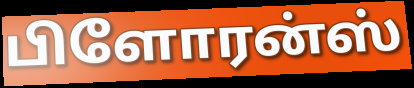
பிளோரன்ஸ்